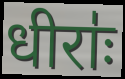
धीराः॑